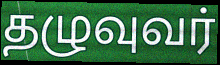
தழுவுவர்